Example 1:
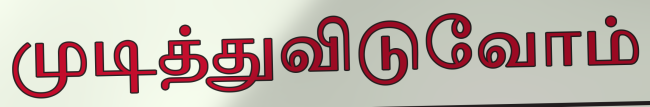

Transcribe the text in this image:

முடித்துவிடுவோம்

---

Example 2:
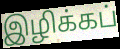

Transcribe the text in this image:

இழிக்கப்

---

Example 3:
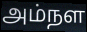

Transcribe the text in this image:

அம்நள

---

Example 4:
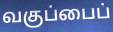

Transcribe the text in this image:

வகுப்பைப்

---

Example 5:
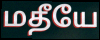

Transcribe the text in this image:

மதீயே